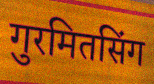
गुरमितसिंग